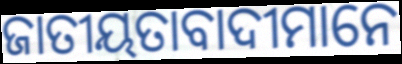
ଜାତୀୟତାବାଦୀମାନେ